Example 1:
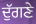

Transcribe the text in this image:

ਦੁੱਗਣੇ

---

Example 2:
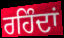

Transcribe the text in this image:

ਰਹਿੰਦਾਂ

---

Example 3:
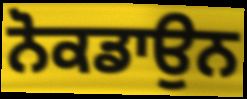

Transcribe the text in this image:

ਨੋਕਡਾਉਨ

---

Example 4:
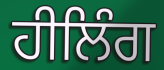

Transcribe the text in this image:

ਹੀਲਿੰਗ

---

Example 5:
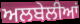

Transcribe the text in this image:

ਅਲਬੇਲੀਆਂ